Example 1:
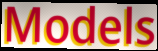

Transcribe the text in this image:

Models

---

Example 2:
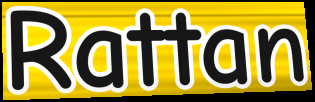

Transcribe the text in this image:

Rattan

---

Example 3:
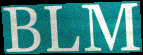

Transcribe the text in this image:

BLM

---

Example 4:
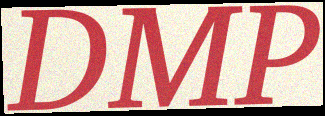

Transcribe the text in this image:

DMP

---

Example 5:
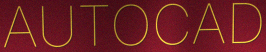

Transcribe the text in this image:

AUTOCAD